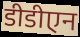
डीडीएन